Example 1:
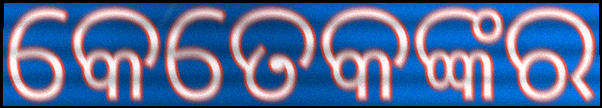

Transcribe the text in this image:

କେତେକଙ୍କର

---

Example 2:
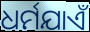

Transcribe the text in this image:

ଧର୍ମଯାଏଁ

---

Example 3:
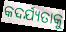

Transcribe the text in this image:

କଦର୍ଯ୍ୟତାକୁ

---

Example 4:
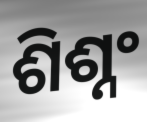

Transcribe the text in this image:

ଶିଶ୍ନଂ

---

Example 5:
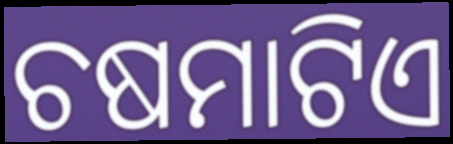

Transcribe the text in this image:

ଚଷମାଟିଏ